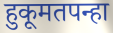
हुकूमतपन्हा